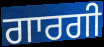
ਗਾਰਗੀ